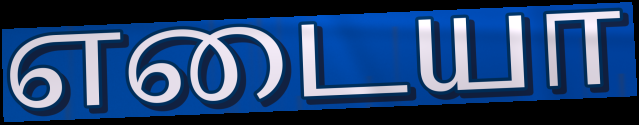
எடையா